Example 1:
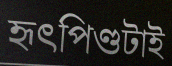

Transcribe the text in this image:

হৃৎপিণ্ডটাই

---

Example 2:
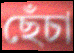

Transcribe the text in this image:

ছেঁচা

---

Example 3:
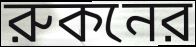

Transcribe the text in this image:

রুকনের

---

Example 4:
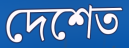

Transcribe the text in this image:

দেশেত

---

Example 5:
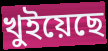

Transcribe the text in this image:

খুইয়েছে